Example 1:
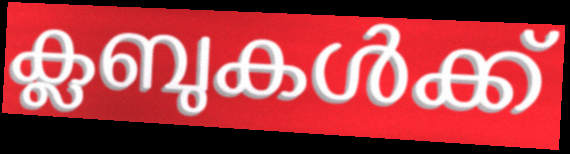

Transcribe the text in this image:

ക്ലബുകൾക്ക്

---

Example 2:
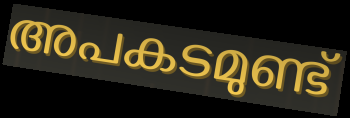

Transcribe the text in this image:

അപകടമുണ്ട്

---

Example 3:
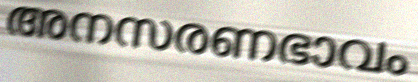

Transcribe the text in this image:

അനസരണഭാവം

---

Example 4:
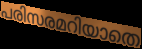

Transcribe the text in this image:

പരിസരമറിയാതെ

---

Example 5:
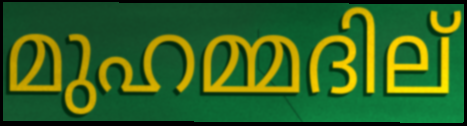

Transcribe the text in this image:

മുഹമ്മദില്